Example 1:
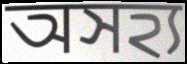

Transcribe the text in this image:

অসহ্য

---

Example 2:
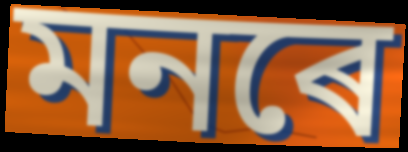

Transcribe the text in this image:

মনৰে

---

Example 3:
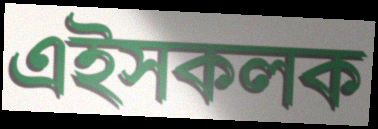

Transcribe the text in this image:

এইসকলক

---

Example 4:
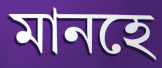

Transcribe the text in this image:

মানহে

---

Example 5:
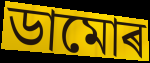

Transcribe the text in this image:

ডামোৰ